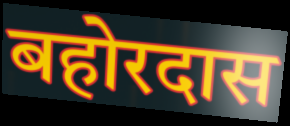
बहोरदास